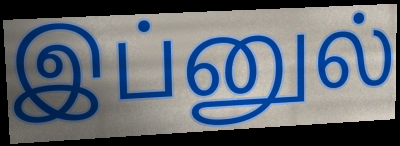
இப்னுல்